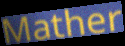
Mather